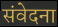
संवेदना